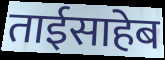
ताईसाहेब